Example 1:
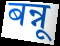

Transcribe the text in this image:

बन्नू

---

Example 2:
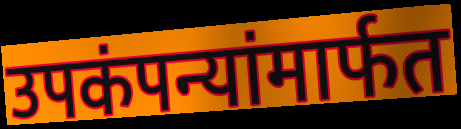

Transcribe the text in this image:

उपकंपन्यांमार्फत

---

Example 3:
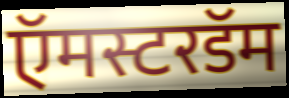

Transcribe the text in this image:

ऍमस्टरडॅम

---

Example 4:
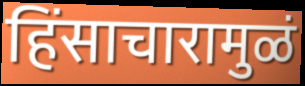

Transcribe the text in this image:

हिंसाचारामुळं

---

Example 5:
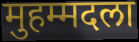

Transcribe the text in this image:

मुहम्मदला